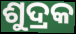
ଶୁଦ୍ରକ